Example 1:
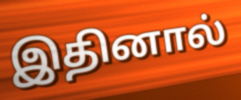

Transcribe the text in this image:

இதினால்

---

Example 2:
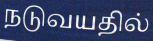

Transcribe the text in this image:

நடுவயதில்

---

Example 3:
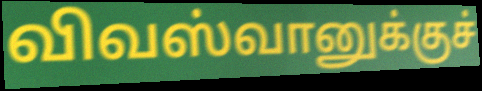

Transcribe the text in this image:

விவஸ்வானுக்குச்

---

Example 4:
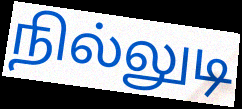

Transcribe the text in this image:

நில்லுடி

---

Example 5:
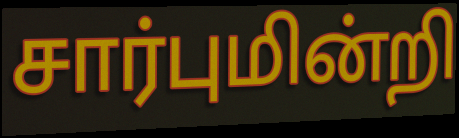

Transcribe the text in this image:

சார்புமின்றி